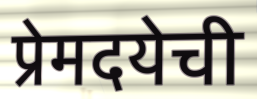
प्रेमदयेची